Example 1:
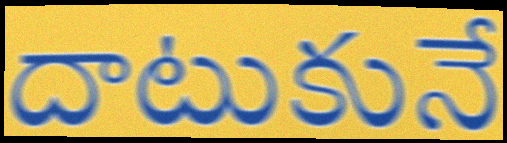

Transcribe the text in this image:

దాటుకునే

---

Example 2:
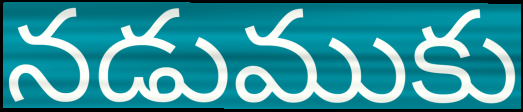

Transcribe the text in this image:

నడుముకు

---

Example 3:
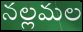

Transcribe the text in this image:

నల్లమల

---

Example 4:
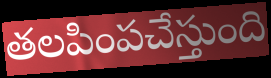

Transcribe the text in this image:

తలపింపచేస్తుంది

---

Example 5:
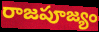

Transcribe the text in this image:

రాజపూజ్యం